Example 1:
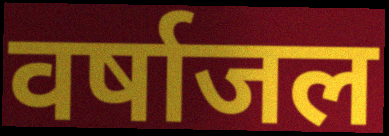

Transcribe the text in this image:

वर्षाजल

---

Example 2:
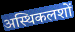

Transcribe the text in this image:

अस्थिकलशों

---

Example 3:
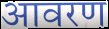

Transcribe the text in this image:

आवरण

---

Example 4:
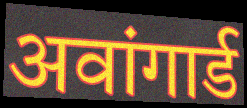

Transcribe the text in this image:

अवांगार्ड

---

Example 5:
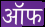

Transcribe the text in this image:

ऑफ